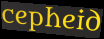
cepheid